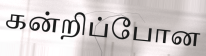
கன்றிப்போன